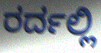
ರರ್ದಲ್ಲಿ